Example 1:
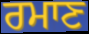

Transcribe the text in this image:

ਰਮਾਣ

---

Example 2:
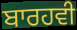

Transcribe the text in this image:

ਬਾਰਹਵੀ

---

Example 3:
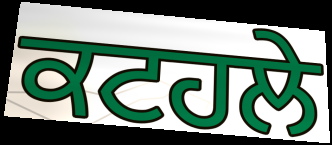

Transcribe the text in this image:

ਕਟਹਲੇ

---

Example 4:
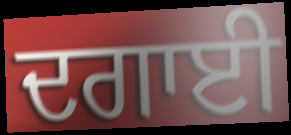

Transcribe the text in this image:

ਦਗਾਈ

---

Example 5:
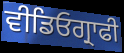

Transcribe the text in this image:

ਵੀਡਿਓਗ੍ਰਾਫੀ